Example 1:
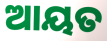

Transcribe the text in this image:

ଆୟତ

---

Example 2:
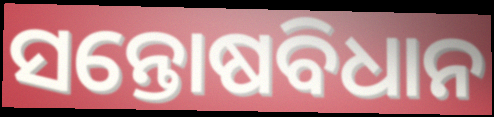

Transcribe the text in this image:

ସନ୍ତୋଷବିଧାନ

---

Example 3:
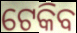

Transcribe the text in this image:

ଟେକିବ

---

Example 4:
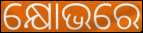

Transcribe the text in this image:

କ୍ଷୋଭରେ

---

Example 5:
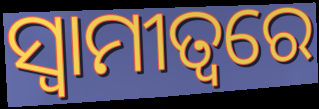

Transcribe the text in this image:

ସ୍ୱାମୀତ୍ୱରେ